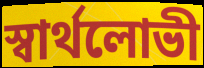
স্বার্থলোভী